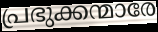
പ്രഭുക്കന്മാരേ